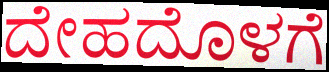
ದೇಹದೊಳಗೆ